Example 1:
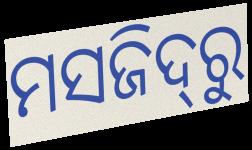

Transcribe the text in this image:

ମସଜିଦ୍‌ରୁ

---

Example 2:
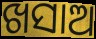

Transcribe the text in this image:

ଖସାଅ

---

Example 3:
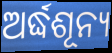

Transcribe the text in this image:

ଅର୍ଦ୍ଧଶୂନ୍ୟ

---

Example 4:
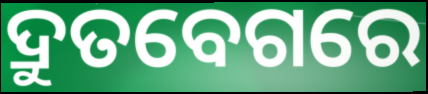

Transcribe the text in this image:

ଦ୍ରୁତବେଗରେ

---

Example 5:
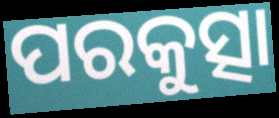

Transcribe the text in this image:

ପରକୁତ୍ସା